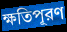
ক্ষতিপূরণ